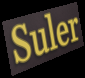
Suler